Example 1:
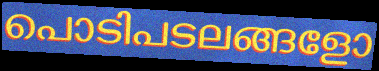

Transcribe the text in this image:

പൊടിപടലങ്ങളോ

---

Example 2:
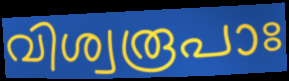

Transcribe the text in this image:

വിശ്വരൂപാഃ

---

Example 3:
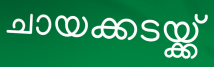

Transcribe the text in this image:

ചായക്കടയ്ക്ക്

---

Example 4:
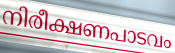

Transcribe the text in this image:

നിരീക്ഷണപാടവം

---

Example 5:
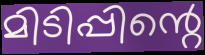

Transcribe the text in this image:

മിടിപ്പിന്റെ